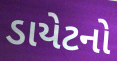
ડાયેટનો